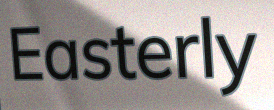
Easterly